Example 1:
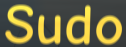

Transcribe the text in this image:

Sudo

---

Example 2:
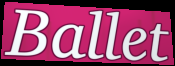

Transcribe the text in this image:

Ballet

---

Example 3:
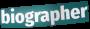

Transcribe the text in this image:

biographer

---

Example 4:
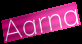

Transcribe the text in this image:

Aarna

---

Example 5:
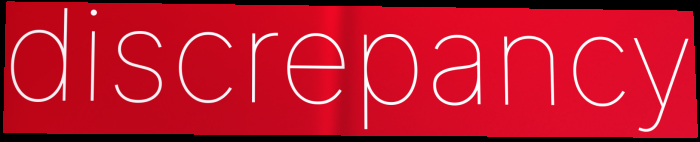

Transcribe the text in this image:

discrepancy